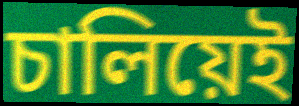
চালিয়েই